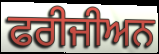
ਫਰੀਜੀਅਨ